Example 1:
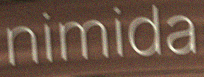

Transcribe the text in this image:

nimida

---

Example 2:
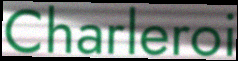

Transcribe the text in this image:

Charleroi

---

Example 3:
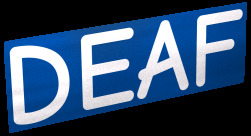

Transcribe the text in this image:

DEAF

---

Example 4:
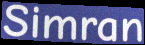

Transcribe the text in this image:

Simran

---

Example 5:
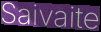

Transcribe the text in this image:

Saivaite